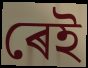
ৰেই